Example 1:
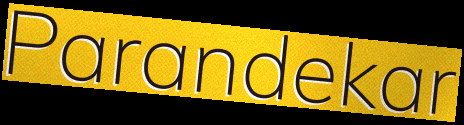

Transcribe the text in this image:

Parandekar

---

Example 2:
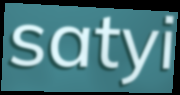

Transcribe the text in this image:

satyi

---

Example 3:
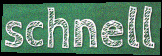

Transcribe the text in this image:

schnell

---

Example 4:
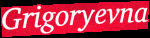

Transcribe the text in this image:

Grigoryevna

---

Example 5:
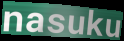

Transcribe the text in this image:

nasuku